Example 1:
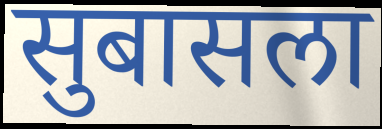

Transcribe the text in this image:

सुबासला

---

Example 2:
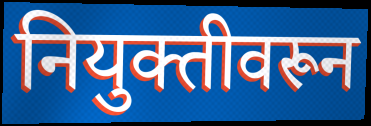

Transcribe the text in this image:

नियुक्तीवरून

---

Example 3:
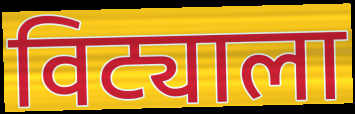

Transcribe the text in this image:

विट्याला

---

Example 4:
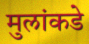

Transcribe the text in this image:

मुलांकडे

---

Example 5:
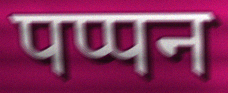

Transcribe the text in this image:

पप्पन